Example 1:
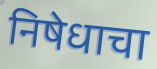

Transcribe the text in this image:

निषेधाचा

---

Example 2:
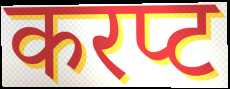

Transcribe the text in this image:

करप्ट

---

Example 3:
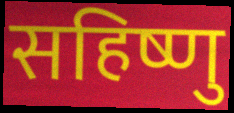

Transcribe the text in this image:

सहिष्णु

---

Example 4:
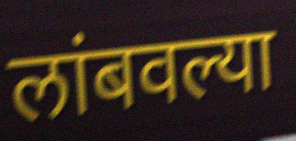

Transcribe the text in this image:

लांबवल्या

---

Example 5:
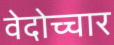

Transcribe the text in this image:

वेदोच्चार